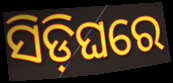
ସିଡ଼ିଘରେ